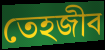
তেহজীব